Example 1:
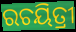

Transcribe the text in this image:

ରଚୟିତ୍ରୀ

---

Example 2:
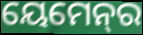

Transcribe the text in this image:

ୟେମେନ୍‌ର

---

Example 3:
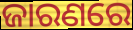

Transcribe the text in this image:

ଜାରଣରେ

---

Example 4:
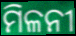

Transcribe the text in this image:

ମିଳନୀ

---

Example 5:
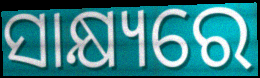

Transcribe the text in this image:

ସାକ୍ଷ୍ୟରେ